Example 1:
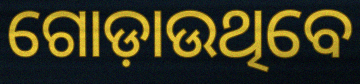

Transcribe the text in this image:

ଗୋଡ଼ାଉଥିବେ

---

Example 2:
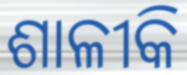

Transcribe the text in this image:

ଶାଳୀକି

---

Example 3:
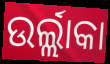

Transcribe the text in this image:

ଉର୍ଲ୍ଲାକା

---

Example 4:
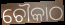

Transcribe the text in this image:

ଚୌକାଠ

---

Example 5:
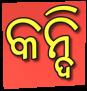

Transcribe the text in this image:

କନ୍ଦି